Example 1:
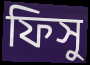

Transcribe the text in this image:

ফিসু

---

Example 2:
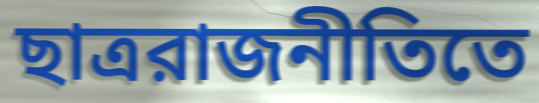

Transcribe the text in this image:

ছাত্ররাজনীতিতে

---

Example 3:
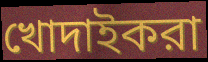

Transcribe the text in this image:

খোদাইকরা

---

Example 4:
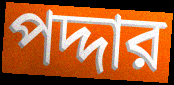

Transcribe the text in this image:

পদ্দার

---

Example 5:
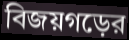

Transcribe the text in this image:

বিজয়গড়ের